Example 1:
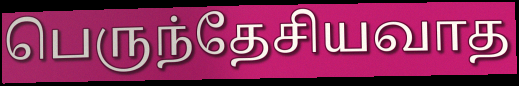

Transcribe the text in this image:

பெருந்தேசியவாத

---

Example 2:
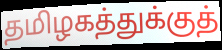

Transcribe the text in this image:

தமிழகத்துக்குத்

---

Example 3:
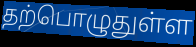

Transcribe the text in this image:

தற்பொழுதுள்ள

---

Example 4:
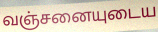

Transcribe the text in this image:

வஞ்சனையுடைய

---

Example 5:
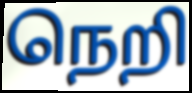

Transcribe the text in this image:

நெறி